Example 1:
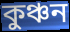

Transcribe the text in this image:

কুঞ্চন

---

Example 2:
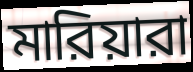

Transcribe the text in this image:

মারিয়ারা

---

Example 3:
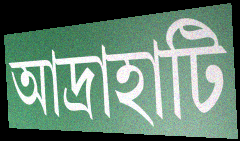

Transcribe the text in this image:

আদ্রাহাটি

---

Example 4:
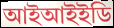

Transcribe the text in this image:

আইআইইডি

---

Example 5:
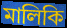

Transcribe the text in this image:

মালিকি